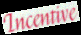
Incentive